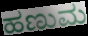
ಹಣುಮ